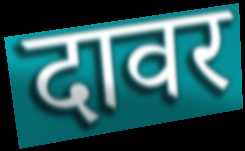
दावर